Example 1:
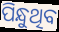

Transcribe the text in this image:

ପିନ୍ଧୁଥିବ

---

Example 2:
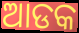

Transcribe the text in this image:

ଆଡକ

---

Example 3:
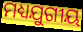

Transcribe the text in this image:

ମଧ୍ଯଯୁଗୀୟ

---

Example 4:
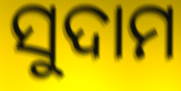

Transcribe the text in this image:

ସୁଦାମ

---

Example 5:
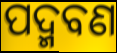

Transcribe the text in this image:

ପଦ୍ମବଣ